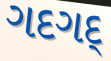
ગદગદ્